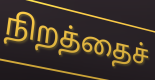
நிறத்தைச்